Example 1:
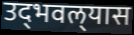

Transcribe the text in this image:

उद्भवल्यास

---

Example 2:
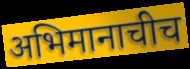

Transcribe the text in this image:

अभिमानाचीच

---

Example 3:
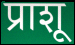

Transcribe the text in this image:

प्राशू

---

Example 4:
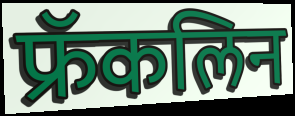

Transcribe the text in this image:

फ्रॅकलिन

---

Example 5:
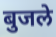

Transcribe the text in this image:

बुजले